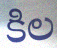
కిల